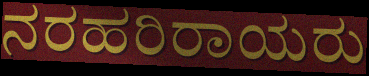
ನರಹರಿರಾಯರು